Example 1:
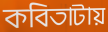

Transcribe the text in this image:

কবিতাটায়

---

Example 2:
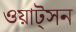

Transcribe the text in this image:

ওয়াট্সন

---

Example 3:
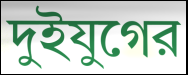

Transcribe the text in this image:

দুইযুগের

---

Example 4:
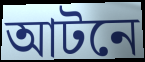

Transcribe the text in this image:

আটনে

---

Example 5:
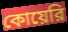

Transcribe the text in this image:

কোয়েরি